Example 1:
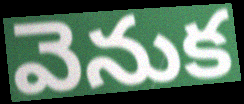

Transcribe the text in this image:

వెనుక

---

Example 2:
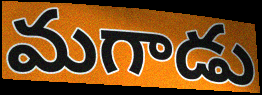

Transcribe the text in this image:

మగాడు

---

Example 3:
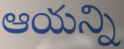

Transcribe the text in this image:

ఆయన్ని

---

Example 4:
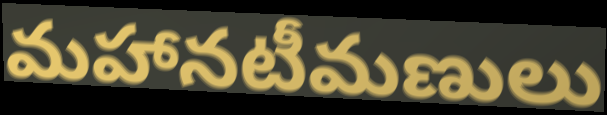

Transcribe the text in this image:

మహానటీమణులు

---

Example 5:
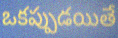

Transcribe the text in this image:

ఒకప్పుడయితే